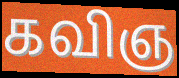
கவிஞ